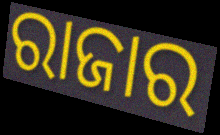
ରାଜାର